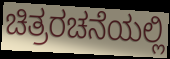
ಚಿತ್ರರಚನೆಯಲ್ಲಿ